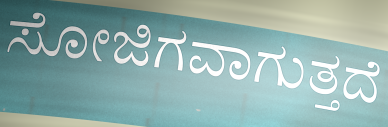
ಸೋಜಿಗವಾಗುತ್ತದೆ